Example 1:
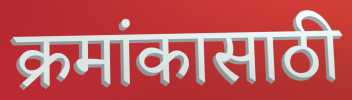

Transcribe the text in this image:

क्रमांकासाठी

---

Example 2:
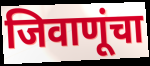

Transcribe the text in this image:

जिवाणूंचा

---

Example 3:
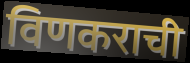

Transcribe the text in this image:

विणकराची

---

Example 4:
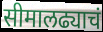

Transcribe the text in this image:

सीमालढ्याचं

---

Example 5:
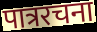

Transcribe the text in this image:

पात्ररचना